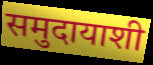
समुदायाशी